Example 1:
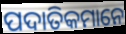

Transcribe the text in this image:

ପଦାତିକମାନେ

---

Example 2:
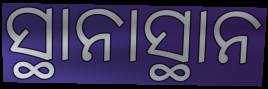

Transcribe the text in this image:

ସ୍ଥାନାସ୍ଥାନ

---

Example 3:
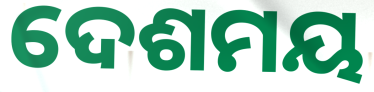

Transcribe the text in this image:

ଦେଶମୟ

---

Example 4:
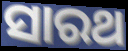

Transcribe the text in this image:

ସାରଥ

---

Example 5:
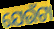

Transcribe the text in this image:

ଯେଉଁଟା